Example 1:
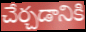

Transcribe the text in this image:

చేర్చడానికి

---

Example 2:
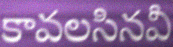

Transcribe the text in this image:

కావలసినవీ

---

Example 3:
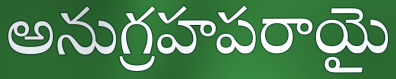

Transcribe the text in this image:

అనుగ్రహపరాయై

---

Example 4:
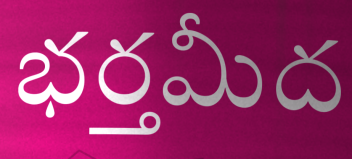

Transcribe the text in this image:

భర్తమీద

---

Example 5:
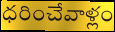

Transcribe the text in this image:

ధరించేవాళ్లం